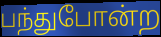
பந்துபோன்ற